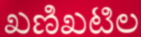
ಖಣಿಖಟಿಲ